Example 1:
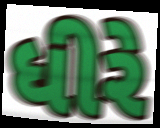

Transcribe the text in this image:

ધીરે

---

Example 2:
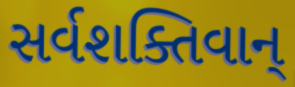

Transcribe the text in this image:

સર્વશક્તિવાન્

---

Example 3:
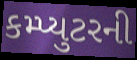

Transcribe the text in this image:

કમ્પ્યુટરની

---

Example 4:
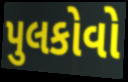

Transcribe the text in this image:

પુલકોવો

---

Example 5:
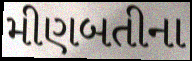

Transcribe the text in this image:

મીણબતીના